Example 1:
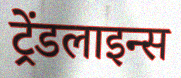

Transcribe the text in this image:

ट्रेंडलाइन्स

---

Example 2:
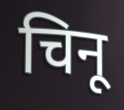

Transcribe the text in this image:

चिनू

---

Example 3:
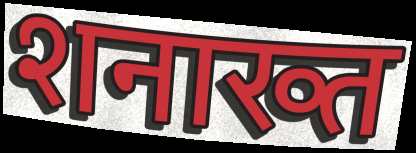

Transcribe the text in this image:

शनाख्त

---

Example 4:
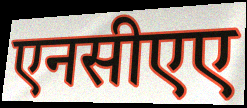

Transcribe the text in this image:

एनसीएए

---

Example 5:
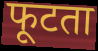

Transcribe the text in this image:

फूटता